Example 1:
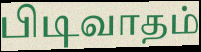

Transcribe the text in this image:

பிடிவாதம்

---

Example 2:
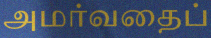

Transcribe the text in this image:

அமர்வதைப்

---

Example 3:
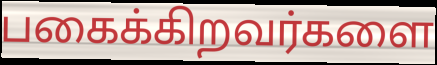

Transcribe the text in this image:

பகைக்கிறவர்களை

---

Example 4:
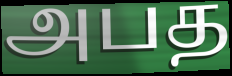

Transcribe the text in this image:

அபத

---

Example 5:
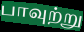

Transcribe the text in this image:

பாவுற்று